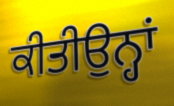
ਕੀਤੀਉਨ੍ਹਾਂ